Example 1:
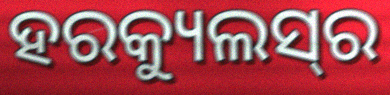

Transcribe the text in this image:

ହରକ୍ୟୁଲସ୍‍ର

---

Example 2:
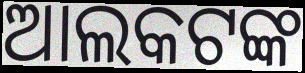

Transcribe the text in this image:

ଆଲକଟଙ୍କ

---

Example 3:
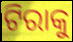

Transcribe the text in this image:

ଟିରାକୁ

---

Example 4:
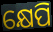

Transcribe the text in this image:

କ୍ଷେପି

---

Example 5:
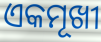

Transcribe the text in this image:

ଏକମୂଖୀ